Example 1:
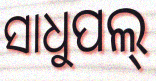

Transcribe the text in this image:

ସାଧୁପଲ୍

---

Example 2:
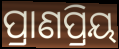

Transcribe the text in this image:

ପ୍ରାଣପ୍ରିୟ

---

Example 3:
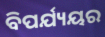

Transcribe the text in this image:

ବିପର୍ଯ୍ୟୟର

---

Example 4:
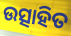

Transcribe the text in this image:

ଉତ୍ସାହିତ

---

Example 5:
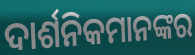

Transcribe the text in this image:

ଦାର୍ଶନିକମାନଙ୍କର